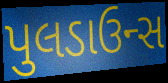
પુલડાઉન્સ